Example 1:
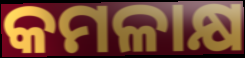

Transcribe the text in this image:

କମଳାକ୍ଷ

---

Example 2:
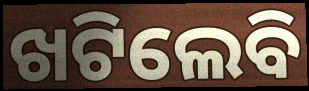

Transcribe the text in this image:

ଖଟିଲେବି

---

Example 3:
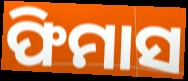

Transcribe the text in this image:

ଫିମାସ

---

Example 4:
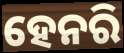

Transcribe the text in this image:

ହେନରି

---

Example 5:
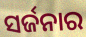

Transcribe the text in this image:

ସର୍ଜନାର